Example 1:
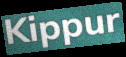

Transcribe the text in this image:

Kippur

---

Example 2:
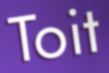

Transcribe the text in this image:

Toit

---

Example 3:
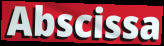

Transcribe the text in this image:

Abscissa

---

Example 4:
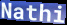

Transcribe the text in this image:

Nathi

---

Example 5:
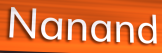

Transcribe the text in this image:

Nanand